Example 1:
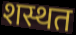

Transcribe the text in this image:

शस्थत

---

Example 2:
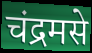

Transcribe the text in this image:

चंद्रमसे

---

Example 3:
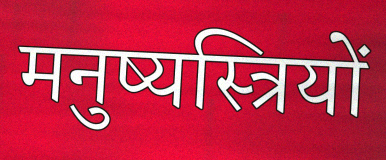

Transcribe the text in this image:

मनुष्यस्त्रियों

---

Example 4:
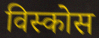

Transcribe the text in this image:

विस्कोस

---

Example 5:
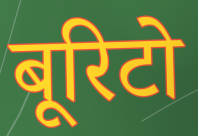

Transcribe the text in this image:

बूरिटो